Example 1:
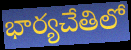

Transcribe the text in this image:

భార్యచేతిలో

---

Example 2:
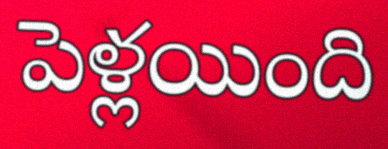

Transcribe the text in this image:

పెళ్లయింది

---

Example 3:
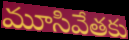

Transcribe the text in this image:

మూసివేతకు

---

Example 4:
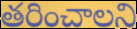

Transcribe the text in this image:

తరించాలని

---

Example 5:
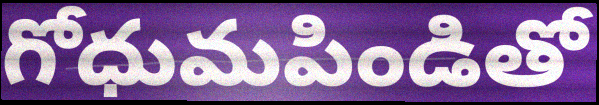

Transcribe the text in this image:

గోధుమపిండితో